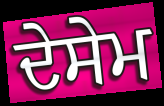
ਦੇਸੇਮ